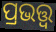
ପ୍ରଭତ୍ତ୍ଵ